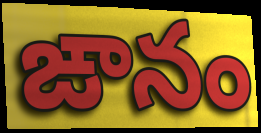
ఙానం